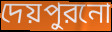
দেয়পুরনো